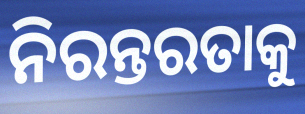
ନିରନ୍ତରତାକୁ